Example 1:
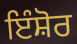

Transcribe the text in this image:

ਇੰਸ਼ੋਰ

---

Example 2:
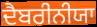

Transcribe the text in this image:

ਦੈਬਰੀਨੀਯਾ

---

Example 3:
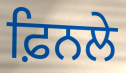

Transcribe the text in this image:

ਫ਼ਿਨਲੇ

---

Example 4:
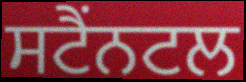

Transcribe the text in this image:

ਸਟੈਂਨਟਲ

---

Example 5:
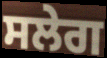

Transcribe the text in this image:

ਸਲੇਗ